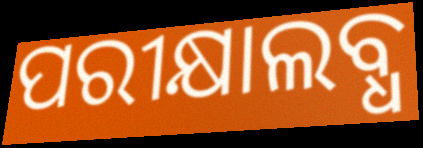
ପରୀକ୍ଷାଲବ୍ଧ